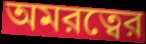
অমরত্বের